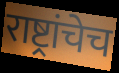
राष्ट्रांचेच